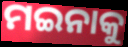
ମଇନାକୁ